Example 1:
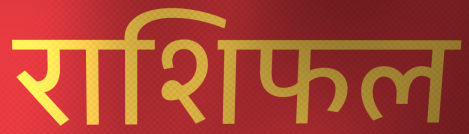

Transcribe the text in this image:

राशिफल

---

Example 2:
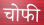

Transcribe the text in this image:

चोफी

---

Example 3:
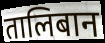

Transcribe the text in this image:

तालिबान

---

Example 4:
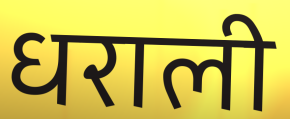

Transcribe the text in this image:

धराली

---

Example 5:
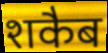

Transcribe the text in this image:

शकैब